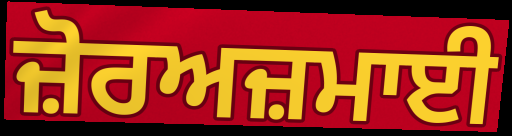
ਜ਼ੋਰਅਜ਼ਮਾਈ